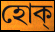
হোক্